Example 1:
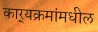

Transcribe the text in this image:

कार्यक्रमांमधील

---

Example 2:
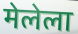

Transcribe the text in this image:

मेलेला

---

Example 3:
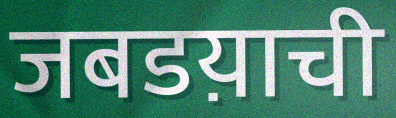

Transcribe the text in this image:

जबडय़ाची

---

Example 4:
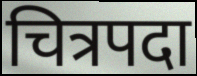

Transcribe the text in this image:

चित्रपदा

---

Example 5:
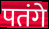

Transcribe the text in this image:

पतंगे